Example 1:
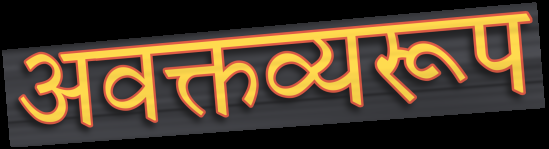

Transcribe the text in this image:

अवक्तव्यरूप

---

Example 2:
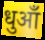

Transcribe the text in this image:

धुआँ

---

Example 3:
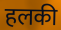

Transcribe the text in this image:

हलकी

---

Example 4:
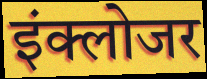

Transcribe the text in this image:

इंक्लोजर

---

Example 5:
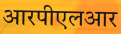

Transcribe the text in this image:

आरपीएलआर